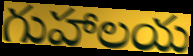
గుహాలయ